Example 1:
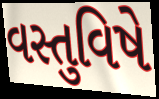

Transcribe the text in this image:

વસ્તુવિષે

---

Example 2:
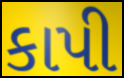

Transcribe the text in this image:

કાપી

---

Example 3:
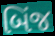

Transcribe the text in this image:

બિંજ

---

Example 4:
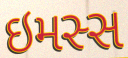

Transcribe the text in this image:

ઇમસ્સ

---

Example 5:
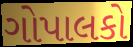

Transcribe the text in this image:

ગોપાલકો